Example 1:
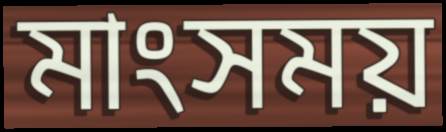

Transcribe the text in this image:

মাংসময়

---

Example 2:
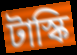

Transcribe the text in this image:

টাস্কি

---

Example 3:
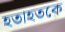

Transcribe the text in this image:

হতাহতকে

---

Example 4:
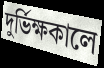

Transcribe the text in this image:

দুর্ভিক্ষকালে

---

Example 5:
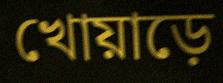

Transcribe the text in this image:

খোয়াড়ে